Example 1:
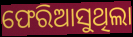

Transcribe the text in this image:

ଫେରିଆସୁଥିଲା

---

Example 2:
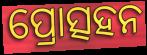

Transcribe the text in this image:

ପ୍ରୋତ୍ସହନ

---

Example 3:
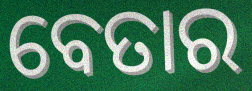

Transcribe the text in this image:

ବେତାର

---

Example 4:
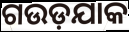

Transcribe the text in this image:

ଗଉଡ଼ଯାକ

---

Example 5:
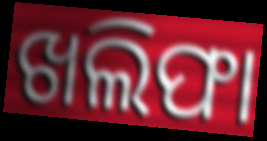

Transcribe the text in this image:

ଖଲିଫା